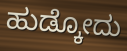
ಹುಡ್ಕೋದು